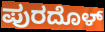
ಪುರದೊಳ್